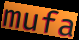
mufa